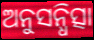
ଅନୁସନ୍ଧିତ୍ସା